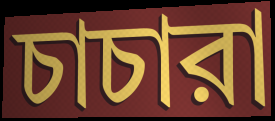
চাচারা